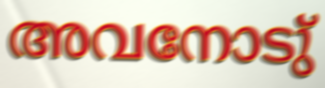
അവനോടു്